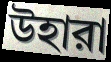
উহারা